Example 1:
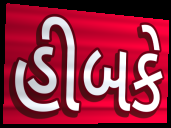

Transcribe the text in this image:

હીબકે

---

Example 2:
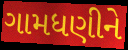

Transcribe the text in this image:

ગામધણીને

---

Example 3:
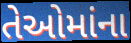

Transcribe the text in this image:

તેઓમાંના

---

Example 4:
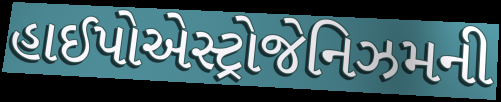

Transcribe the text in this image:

હાઈપોએસ્ટ્રોજેનિઝમની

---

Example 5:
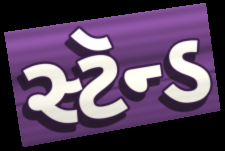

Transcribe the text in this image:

સ્ટૅન્ડ